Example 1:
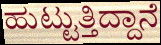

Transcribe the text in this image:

ಹುಟ್ಟುತ್ತಿದ್ದಾನೆ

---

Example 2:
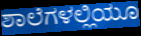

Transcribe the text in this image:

ಶಾಲೆಗಳಲ್ಲಿಯೂ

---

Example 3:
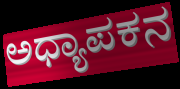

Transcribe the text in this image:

ಅಧ್ಯಾಪಕನ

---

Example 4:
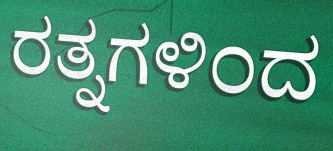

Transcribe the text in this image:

ರತ್ನಗಳಿಂದ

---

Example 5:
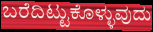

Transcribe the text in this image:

ಬರೆದಿಟ್ಟುಕೊಳ್ಳುವುದು